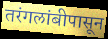
तरंगलांबीपासून